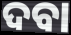
ଦବା